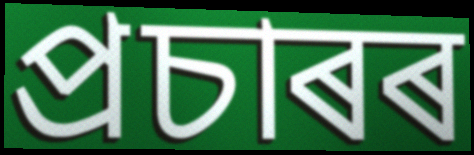
প্ৰচাৰৰ